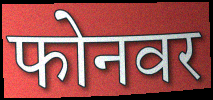
फोनवर